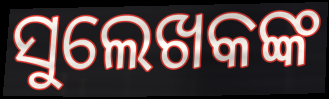
ସୁଲେଖକଙ୍କ